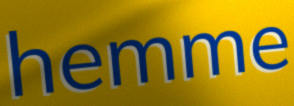
hemme